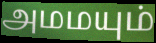
அமமயும்